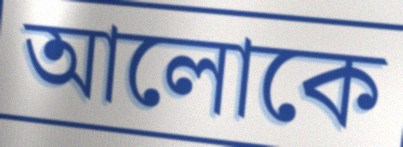
আলোকে